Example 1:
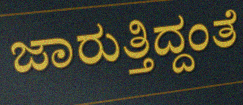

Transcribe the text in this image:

ಜಾರುತ್ತಿದ್ದಂತೆ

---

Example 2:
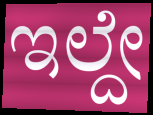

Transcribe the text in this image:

ಇಲ್ದೇ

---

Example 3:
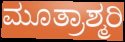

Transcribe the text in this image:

ಮೂತ್ರಾಶ್ಮರಿ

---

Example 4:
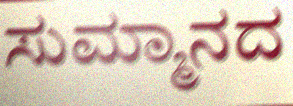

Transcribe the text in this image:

ಸುಮ್ಮಾನದ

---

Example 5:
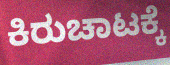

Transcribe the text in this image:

ಕಿರುಚಾಟಕ್ಕೆ